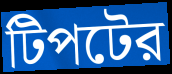
টিপটের